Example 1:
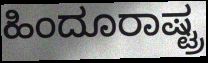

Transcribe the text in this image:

ಹಿಂದೂರಾಷ್ಟ್ರ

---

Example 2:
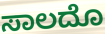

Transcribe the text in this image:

ಸಾಲದೊ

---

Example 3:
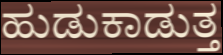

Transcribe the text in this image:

ಹುಡುಕಾಡುತ್ತ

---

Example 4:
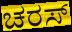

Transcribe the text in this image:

ಚರಸ್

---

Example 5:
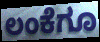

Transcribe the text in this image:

ಲಂಕೆಗೂ